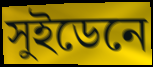
সুইডেনে